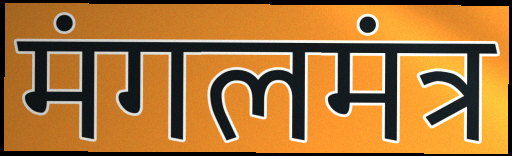
मंगलमंत्र